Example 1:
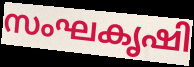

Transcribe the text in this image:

സംഘകൃഷി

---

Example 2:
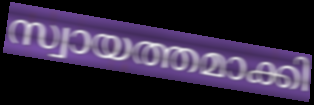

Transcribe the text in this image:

സ്വായത്തമാക്കി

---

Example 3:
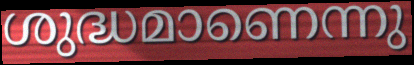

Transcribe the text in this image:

ശുദ്ധമാണെന്നു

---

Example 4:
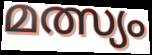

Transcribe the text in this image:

മത്സ്യം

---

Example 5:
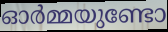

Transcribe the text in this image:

ഓർമ്മയുണ്ടോ